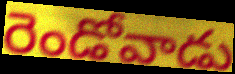
రెండోవాడు